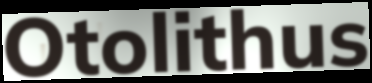
Otolithus